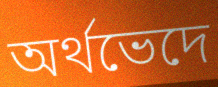
অর্থভেদে